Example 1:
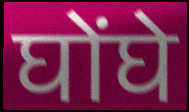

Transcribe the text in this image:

घोंघे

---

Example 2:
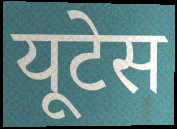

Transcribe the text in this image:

यूटेस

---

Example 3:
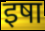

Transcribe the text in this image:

इषा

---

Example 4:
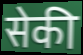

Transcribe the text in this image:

सेकी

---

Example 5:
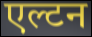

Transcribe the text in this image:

एल्टन